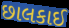
છાલકાઈ